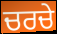
ਚਰਚੇ